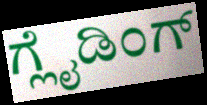
ಗ್ಲೈಡಿಂಗ್